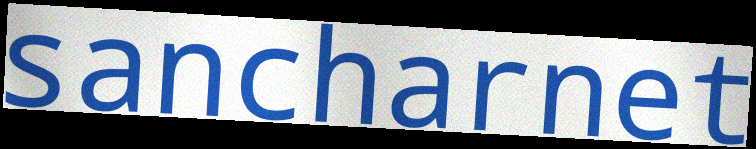
sancharnet